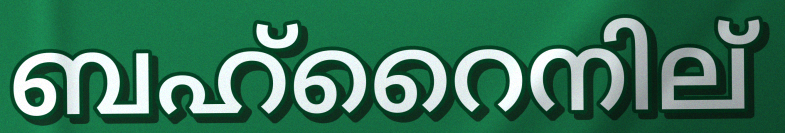
ബഹ്റൈനില്